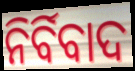
ନିର୍ବିବାଦ